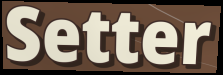
Setter